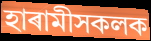
হাৰামীসকলক